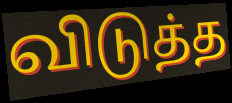
விடுத்த